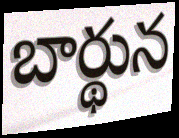
బార్థున